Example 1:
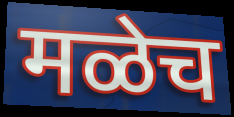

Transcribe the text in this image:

मळेच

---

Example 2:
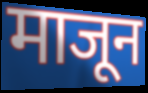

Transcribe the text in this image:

माजून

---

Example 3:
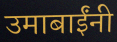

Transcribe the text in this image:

उमाबाईंनी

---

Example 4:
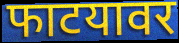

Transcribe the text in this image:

फाटयावर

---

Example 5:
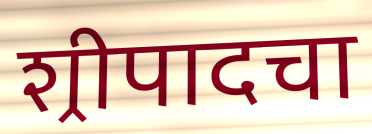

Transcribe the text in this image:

श्रीपादचा